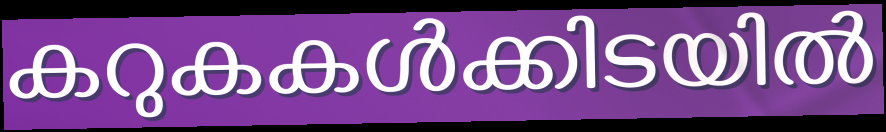
കറുകകൾക്കിടയിൽ